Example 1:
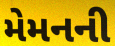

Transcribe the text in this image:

મેમનની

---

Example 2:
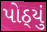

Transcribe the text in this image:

પોઠ્યું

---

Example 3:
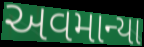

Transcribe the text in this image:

અવમાન્યા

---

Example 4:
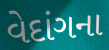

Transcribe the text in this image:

વેદાંગના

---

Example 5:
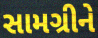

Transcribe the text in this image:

સામગ્રીને